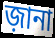
জ়ানা